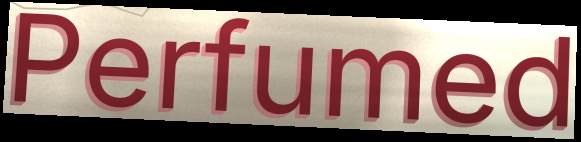
Perfumed